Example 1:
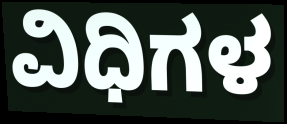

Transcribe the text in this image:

ವಿಧಿಗಳ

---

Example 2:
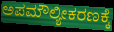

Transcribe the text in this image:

ಅಪಮೌಲ್ಯೀಕರಣಕ್ಕೆ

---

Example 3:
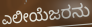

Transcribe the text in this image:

ಎಲೀಯೆಜರನು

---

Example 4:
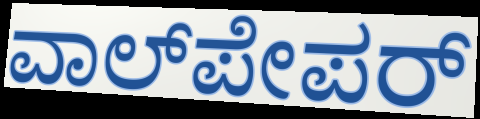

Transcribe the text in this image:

ವಾಲ್‌ಪೇಪರ್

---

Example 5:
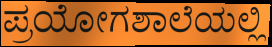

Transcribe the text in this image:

ಪ್ರಯೋಗಶಾಲೆಯಲ್ಲಿ